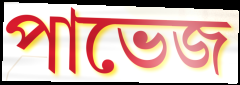
পাভেজ